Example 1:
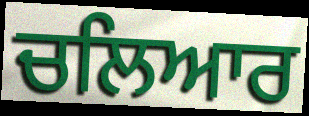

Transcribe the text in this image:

ਚਲਿਆਰ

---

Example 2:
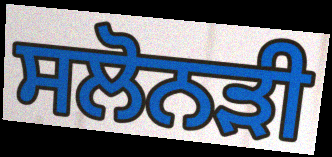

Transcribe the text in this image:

ਸਲੋਨੜੀ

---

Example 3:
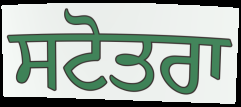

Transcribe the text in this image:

ਸਟੋਤਰਾ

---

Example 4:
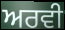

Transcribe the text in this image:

ਅਰਵੀ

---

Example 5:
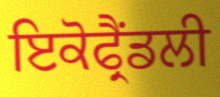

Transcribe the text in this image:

ਇਕੋਫ੍ਰੈਂਡਲੀ